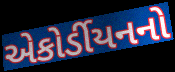
એકોર્ડીયનનો